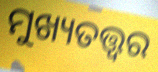
ମୁଖ୍ୟତତ୍ତ୍ୱର